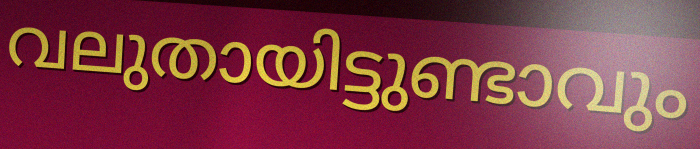
വലുതായിട്ടുണ്ടാവും